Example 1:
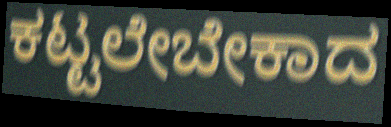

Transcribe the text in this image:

ಕಟ್ಟಲೇಬೇಕಾದ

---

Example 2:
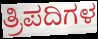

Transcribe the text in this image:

ತ್ರಿಪದಿಗಳ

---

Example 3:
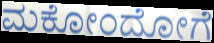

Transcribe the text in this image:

ಮಕೋಂದೋಗೆ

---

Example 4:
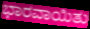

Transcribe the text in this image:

ಭಾರವಾಯಿತು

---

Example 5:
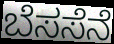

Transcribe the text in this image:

ಬೆಸಸೆನೆ